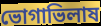
ভোগাভিলাষ